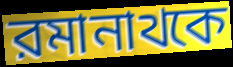
রমানাথকে